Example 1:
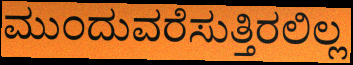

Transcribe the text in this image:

ಮುಂದುವರೆಸುತ್ತಿರಲಿಲ್ಲ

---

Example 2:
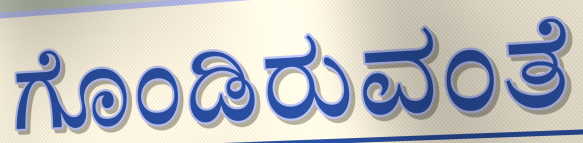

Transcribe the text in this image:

ಗೊಂಡಿರುವಂತೆ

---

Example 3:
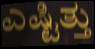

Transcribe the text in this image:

ಎಷ್ಟಿತ್ತು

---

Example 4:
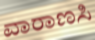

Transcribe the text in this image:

ವಾರಾಣಸಿ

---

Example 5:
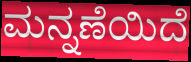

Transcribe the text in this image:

ಮನ್ನಣೆಯಿದೆ